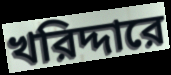
খরিদ্দারে